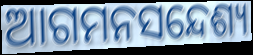
ଆଗମନସନ୍ଦେଶ୍ୟ